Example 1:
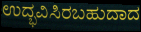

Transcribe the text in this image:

ಉದ್ಭವಿಸಿರಬಹುದಾದ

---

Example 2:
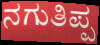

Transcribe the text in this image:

ನಗುತಿಪ್ಪ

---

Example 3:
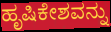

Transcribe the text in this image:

ಹೃಷಿಕೇಶವನ್ನು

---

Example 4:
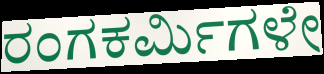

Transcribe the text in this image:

ರಂಗಕರ್ಮಿಗಳೇ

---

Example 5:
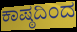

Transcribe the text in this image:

ಕಾಷ್ಠದಿಂದ